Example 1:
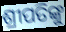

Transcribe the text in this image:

ଶ୍ରୀପତିଙ୍କୁ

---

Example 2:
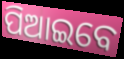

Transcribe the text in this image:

ପିଆଇବେ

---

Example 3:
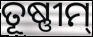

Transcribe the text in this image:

ତୂଷ୍ଣୀମ୍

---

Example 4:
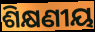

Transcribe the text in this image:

ଶିକ୍ଷଣୀୟ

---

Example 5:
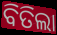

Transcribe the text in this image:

ବିତିଲା